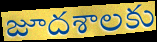
జూదశాలకు